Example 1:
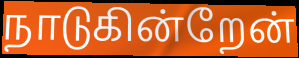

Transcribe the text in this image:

நாடுகின்றேன்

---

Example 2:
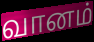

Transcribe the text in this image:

வானம்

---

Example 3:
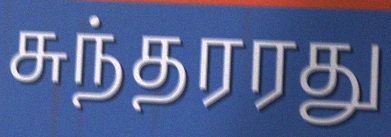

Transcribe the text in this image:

சுந்தரரது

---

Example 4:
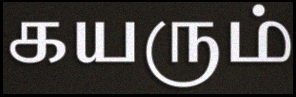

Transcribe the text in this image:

கயரும்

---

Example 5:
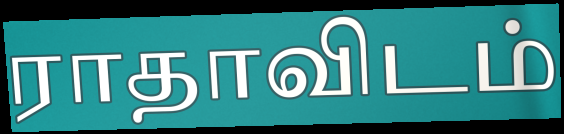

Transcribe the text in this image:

ராதாவிடம்